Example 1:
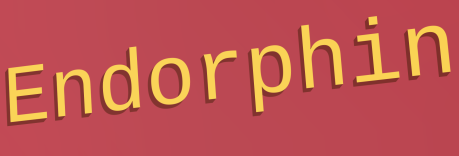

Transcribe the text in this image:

Endorphin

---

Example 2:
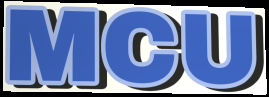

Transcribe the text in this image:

MCU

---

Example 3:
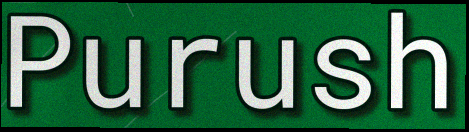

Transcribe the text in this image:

Purush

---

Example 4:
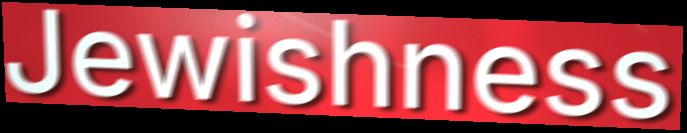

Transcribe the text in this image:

Jewishness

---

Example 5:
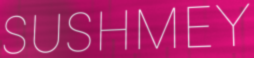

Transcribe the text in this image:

SUSHMEY